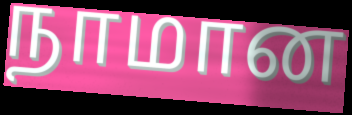
நாமான